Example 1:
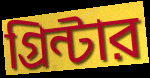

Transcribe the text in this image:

গ্রিন্টার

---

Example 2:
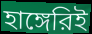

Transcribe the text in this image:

হাঙ্গেরিই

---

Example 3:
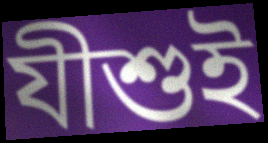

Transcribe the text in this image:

যীশুই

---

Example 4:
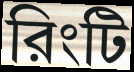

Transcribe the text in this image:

রিংটি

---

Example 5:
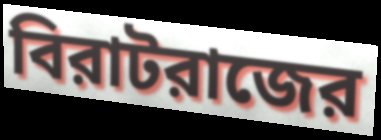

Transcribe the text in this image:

বিরাটরাজের